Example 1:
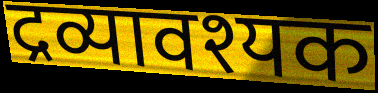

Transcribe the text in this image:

द्रव्यावश्यक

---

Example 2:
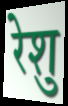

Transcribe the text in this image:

रेशु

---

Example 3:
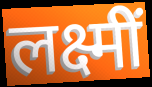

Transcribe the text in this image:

लक्ष्मीं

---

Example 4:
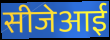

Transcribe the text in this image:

सीजेआई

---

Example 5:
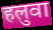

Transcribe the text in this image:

हलुवा